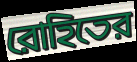
রোহিতের